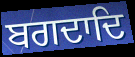
ਬਗਦਾਦਿ